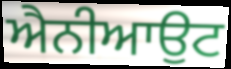
ਐਨੀਆਉਟ